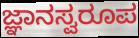
ಜ್ಞಾನಸ್ವರೂಪ